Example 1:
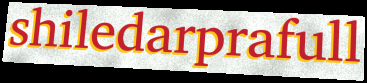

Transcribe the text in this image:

shiledarprafull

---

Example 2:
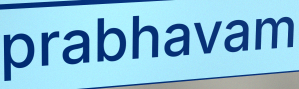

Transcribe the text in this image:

prabhavam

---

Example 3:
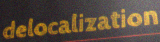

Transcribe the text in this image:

delocalization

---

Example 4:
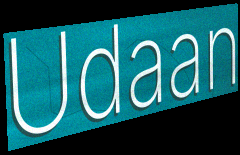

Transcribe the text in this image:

Udaan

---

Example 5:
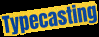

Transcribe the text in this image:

Typecasting